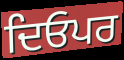
ਦਿਓਪਰ